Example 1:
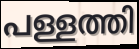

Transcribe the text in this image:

പള്ളത്തി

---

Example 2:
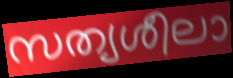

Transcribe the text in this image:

സത്യശീലാ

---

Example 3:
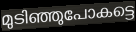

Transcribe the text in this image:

മുടിഞ്ഞുപോകട്ടെ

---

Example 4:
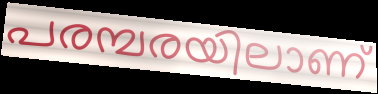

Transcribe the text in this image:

പരമ്പരയിലാണ്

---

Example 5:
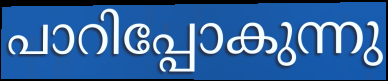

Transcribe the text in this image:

പാറിപ്പോകുന്നു